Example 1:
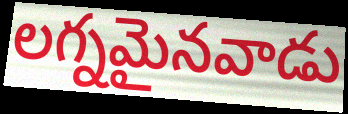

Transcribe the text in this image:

లగ్నమైనవాడు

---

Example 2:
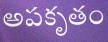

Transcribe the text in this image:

అపకృతం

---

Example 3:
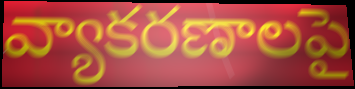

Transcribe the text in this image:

వ్యాకరణాలపై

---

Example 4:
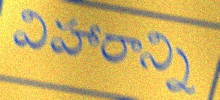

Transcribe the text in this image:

విహారాన్ని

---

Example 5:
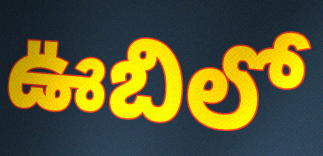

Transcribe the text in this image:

ఊబిలో